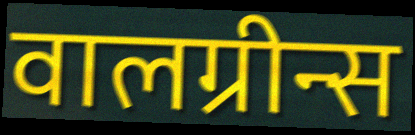
वालग्रीन्स